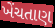
ખેંચતાણ